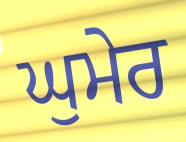
ਘੁਮੇਰ